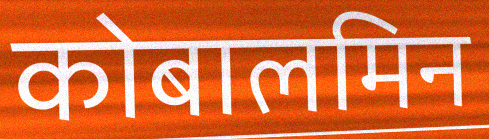
कोबालमिन